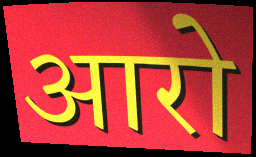
आरो